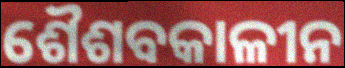
ଶୈଶବକାଳୀନ